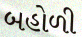
બહોળી